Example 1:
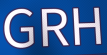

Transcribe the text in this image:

GRH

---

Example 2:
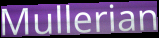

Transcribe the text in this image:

Mullerian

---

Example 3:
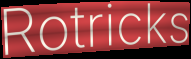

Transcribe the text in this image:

Rotricks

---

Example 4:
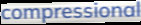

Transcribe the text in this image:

compressional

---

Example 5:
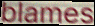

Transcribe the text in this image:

blames